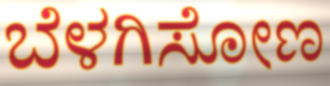
ಬೆಳಗಿಸೋಣ